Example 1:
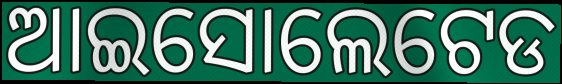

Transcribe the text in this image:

ଆଇସୋଲେଟେଡ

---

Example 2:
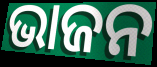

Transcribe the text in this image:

ଭାଜନ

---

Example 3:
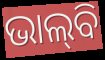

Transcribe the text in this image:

ଭାଲ୍‌ବି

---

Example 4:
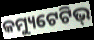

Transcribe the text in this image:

କମ୍ୟୁଟେଟିଭ୍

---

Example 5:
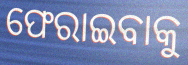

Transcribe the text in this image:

ଫେରାଇବାକୁ